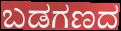
ಬಡಗಣದ